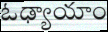
ఓఢ్యాయాం